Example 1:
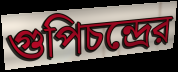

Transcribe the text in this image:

গুপিচন্দ্রের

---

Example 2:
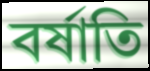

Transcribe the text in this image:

বর্ষাতি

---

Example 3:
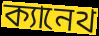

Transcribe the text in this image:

ক্যানেথ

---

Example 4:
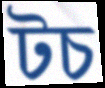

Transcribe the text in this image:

টচ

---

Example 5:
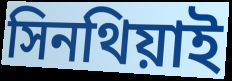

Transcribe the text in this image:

সিনথিয়াই